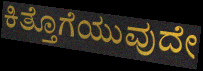
ಕಿತ್ತೊಗೆಯುವುದೇ